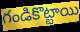
గండికొట్టాయి